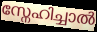
സ്നേഹിച്ചാൽ